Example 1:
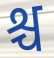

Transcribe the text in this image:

श्च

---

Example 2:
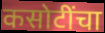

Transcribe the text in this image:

कसोटींचा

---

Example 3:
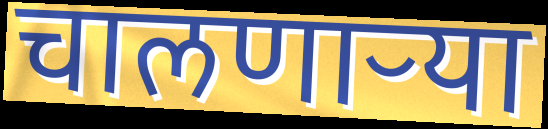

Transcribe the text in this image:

चालणाऱ्या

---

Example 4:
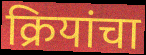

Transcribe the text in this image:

क्रियांचा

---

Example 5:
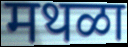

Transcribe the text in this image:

मथळा